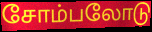
சோம்பலோடு